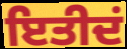
ਇਤੀਦਂ